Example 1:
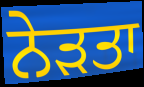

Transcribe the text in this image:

ਨੇੜਤਾ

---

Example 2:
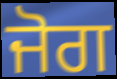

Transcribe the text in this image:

ਜੋਗ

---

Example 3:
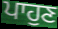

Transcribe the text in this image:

ਪਾਹੁਣ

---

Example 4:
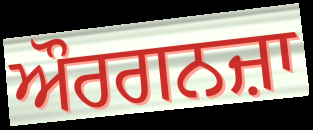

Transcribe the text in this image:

ਔਰਗਨਜ਼ਾ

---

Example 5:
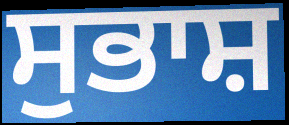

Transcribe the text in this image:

ਸੁਭਾਸ਼